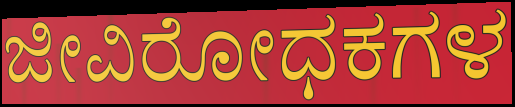
ಜೀವಿರೋಧಕಗಳ